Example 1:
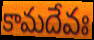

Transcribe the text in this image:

కామదేవః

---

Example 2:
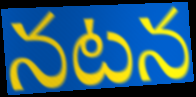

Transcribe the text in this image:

నటన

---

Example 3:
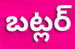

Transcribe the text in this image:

బట్లర్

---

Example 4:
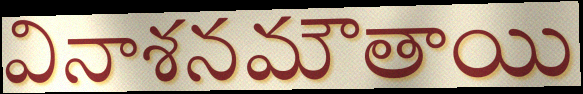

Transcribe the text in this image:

వినాశనమౌతాయి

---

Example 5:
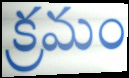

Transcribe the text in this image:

క్రమం